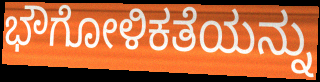
ಭೌಗೋಳಿಕತೆಯನ್ನು